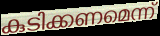
കുടിക്കണമെന്ന്